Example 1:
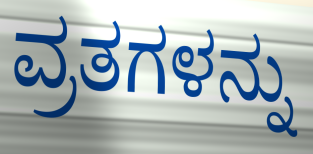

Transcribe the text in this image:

ವ್ರತಗಳನ್ನು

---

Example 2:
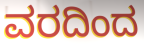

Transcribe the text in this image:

ವರದಿಂದ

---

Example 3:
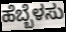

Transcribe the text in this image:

ಹೆಬ್ಬೆಳಸು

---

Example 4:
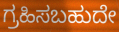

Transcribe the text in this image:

ಗ್ರಹಿಸಬಹುದೇ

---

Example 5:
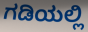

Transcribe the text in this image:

ಗಡಿಯಲ್ಲಿ